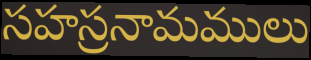
సహస్రనామములు